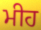
ਮੀਹ